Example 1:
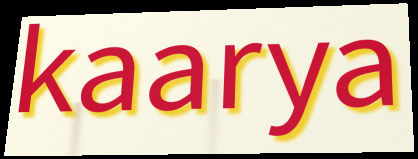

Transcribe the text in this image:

kaarya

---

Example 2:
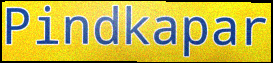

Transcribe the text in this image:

Pindkapar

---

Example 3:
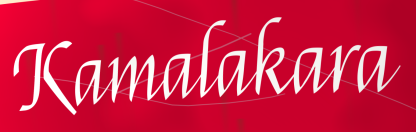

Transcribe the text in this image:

Kamalakara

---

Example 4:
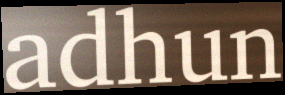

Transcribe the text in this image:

adhun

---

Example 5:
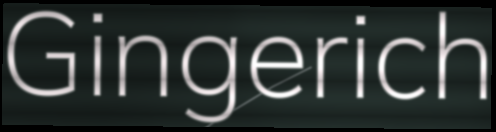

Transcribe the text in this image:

Gingerich